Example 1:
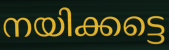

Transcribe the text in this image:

നയിക്കട്ടെ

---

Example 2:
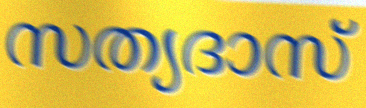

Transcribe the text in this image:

സത്യദാസ്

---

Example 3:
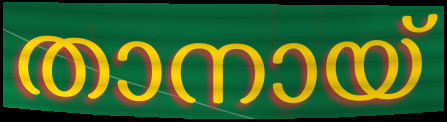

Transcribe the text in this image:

താനായ്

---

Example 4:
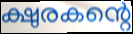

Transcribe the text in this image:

ക്ഷുരകന്റെ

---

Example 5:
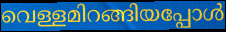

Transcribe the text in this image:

വെള്ളമിറങ്ങിയപ്പോൾ